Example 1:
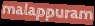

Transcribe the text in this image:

malappuram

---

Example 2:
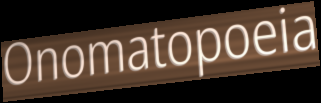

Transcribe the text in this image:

Onomatopoeia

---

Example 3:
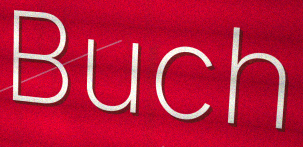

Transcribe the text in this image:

Buch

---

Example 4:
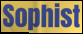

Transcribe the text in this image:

Sophist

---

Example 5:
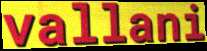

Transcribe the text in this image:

vallani